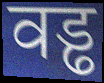
वड्ढ